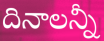
దినాలన్నీ